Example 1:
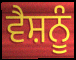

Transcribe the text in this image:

ਵੈਸ਼ਨੂੰ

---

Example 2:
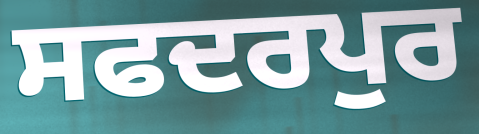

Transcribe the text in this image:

ਸਫਦਰਪੁਰ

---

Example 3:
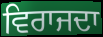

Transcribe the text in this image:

ਵਿਰਾਜਦਾ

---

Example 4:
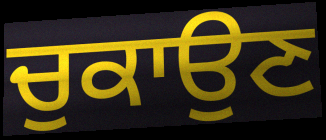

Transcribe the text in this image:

ਚੁਕਾਉਣ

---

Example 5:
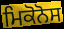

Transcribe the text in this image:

ਮਿਕੋਨੋਸ